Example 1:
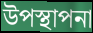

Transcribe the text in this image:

উপস্থাপনা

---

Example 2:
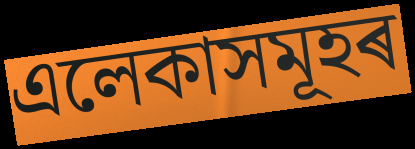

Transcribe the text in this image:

এলেকাসমূহৰ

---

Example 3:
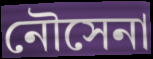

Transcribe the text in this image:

নৌসেনা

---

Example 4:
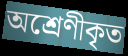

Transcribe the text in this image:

অশ্ৰেণীকৃত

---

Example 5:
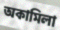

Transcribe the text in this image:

অকামিলা